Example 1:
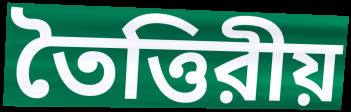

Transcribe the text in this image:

তৈত্তিরীয়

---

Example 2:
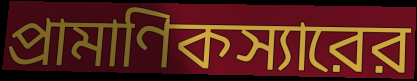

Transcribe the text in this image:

প্রামাণিকস্যারের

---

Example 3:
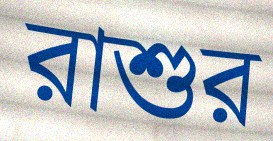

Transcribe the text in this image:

রাশুর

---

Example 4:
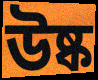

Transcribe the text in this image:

উষ্ক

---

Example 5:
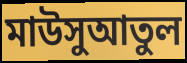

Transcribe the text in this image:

মাউসুআতুল